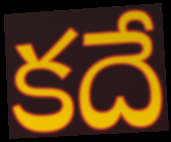
కదే